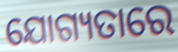
ଯୋଗ୍ୟତାରେ